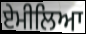
ਏਮੀਲਿਆ